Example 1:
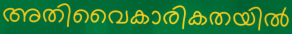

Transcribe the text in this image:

അതിവൈകാരികതയിൽ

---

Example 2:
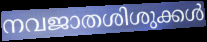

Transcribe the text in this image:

നവജാതശിശുക്കൾ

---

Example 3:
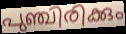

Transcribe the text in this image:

പുഞ്ചിരിക്കും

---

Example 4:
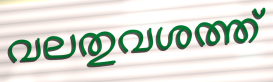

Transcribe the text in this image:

വലതുവശത്ത്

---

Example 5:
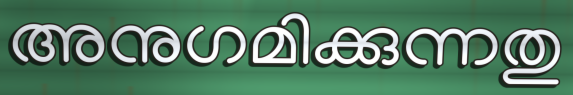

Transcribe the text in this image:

അനുഗമിക്കുന്നതു